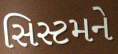
સિસ્ટમને